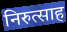
निरुत्साह